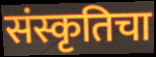
संस्कृतिचा